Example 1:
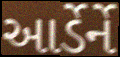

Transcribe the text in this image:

આર્ડેર્ને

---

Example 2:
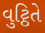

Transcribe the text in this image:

વુટ્ઠિતે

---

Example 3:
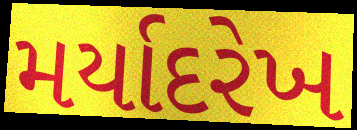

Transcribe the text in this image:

મર્યાદરેખ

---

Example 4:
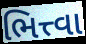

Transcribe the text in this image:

ભિત્ત્વા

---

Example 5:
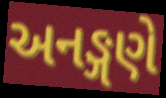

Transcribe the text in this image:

અનઙ્ગણે